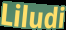
Liludi